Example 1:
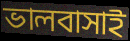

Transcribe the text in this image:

ভালবাসাই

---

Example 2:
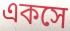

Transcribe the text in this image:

একসে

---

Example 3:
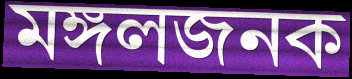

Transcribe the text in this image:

মঙ্গলজনক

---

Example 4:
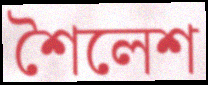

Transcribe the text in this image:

শৈলেশ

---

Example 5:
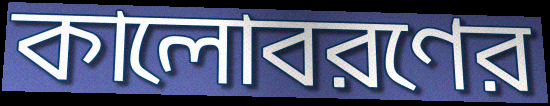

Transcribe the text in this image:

কালোবরণের